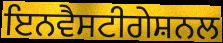
ਇਨਵੈਸਟੀਗੇਸ਼ਨਲ